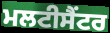
ਮਲਟੀਸੈਂਟਰ